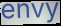
envy